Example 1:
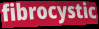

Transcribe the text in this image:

fibrocystic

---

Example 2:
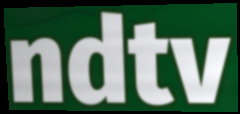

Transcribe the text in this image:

ndtv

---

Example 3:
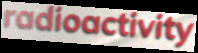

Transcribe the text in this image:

radioactivity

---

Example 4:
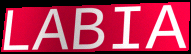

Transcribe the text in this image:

LABIA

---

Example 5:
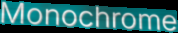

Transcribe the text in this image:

Monochrome